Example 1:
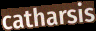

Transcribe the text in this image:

catharsis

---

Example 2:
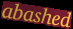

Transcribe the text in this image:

abashed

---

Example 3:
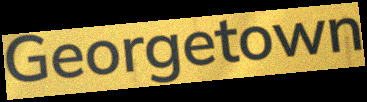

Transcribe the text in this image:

Georgetown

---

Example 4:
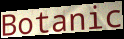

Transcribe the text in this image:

Botanic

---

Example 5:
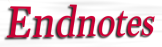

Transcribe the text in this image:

Endnotes